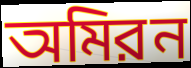
অমিরন